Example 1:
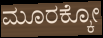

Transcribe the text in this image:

ಮೂರಕ್ಕೋ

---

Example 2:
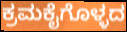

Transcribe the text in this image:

ಕ್ರಮಕೈಗೊಳ್ಳದ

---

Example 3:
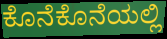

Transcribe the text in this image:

ಕೊನೆಕೊನೆಯಲ್ಲಿ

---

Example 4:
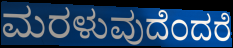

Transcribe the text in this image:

ಮರಳುವುದೆಂದರೆ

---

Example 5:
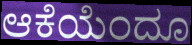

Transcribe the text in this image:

ಆಕೆಯೆಂದೂ